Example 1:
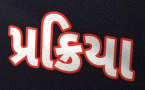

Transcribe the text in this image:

પ્રક્રિયા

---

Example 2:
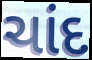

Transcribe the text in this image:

ચાંદ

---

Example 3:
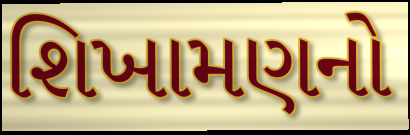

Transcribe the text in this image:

શિખામણનો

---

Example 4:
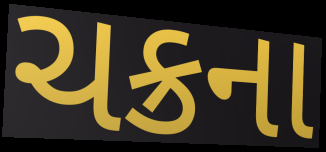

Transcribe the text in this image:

ચક્રના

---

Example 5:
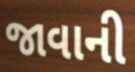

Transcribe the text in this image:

જાવાની